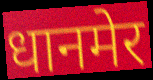
धानमेर